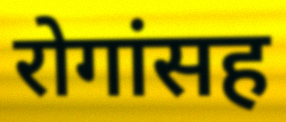
रोगांसह